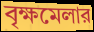
বৃক্ষমেলার